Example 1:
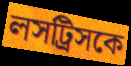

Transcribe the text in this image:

লসট্রিসকে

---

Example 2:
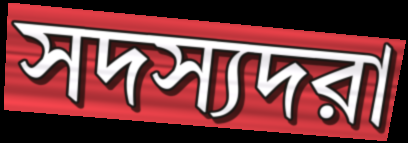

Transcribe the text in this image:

সদস্যদরা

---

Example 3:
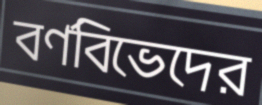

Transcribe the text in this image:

বর্ণবিভেদের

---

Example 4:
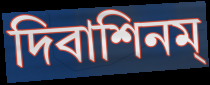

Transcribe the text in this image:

দিবাশিনম্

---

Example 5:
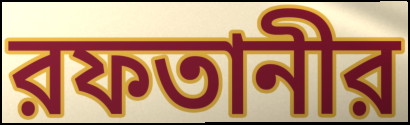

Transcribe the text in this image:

রফতানীর